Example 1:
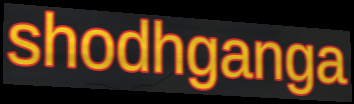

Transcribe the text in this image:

shodhganga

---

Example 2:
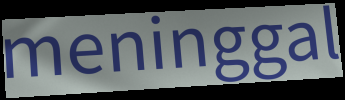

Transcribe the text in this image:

meninggal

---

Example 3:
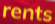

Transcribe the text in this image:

rents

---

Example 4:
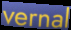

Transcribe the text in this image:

vernal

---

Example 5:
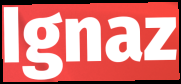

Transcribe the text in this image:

Ignaz